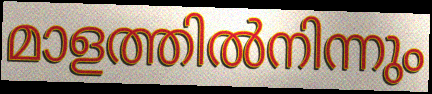
മാളത്തിൽനിന്നും